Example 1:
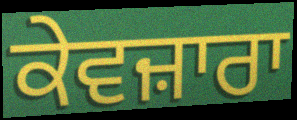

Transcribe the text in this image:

ਕੇਵਜ਼ਾਰਾ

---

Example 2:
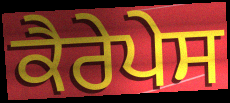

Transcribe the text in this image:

ਕੈਰੇਪੇਸ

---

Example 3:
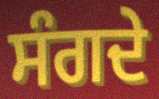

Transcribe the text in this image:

ਸੰਗਦੇ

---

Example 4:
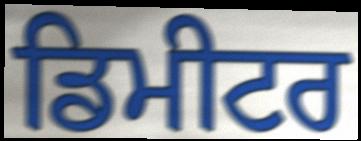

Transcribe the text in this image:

ਡਿਮੀਟਰ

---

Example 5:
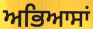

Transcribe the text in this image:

ਅਭਿਆਸਾਂ